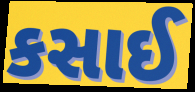
કસાઈ